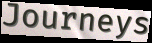
Journeys